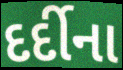
દર્દીના